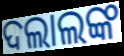
ଦଲାଲଙ୍କ